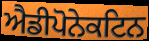
ਐਡੀਪੋਨੇਕਟਿਨ